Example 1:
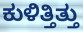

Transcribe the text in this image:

ಕುಳಿತ್ತಿತ್ತು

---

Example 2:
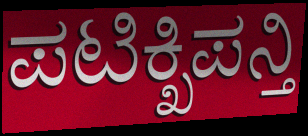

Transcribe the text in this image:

ಪಟಿಕ್ಖಿಪನ್ತಿ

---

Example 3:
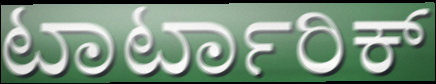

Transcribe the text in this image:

ಟಾರ್ಟಾರಿಕ್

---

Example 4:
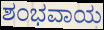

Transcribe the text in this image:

ಶಂಭವಾಯ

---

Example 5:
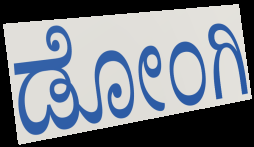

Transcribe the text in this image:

ಡೋಂಗಿ